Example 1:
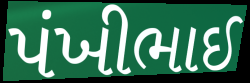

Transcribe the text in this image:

પંખીભાઈ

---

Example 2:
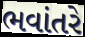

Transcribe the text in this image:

ભવાંતરે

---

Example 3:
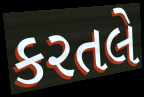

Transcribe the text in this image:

કરતલે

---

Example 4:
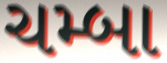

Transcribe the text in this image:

ચમ્બા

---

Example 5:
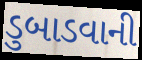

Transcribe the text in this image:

ડુબાડવાની